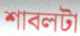
শাবলটা